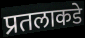
प्रतलाकडे